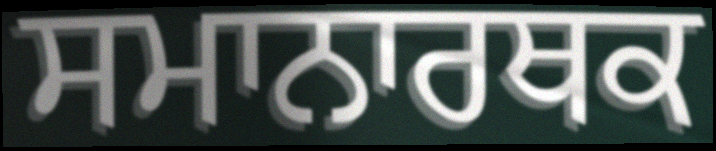
ਸਮਾਨਾਰਥਕ